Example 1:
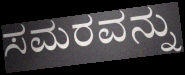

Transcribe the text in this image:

ಸಮರವನ್ನು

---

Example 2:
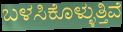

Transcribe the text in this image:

ಬಳಸಿಕೊಳ್ಳುತ್ತಿವೆ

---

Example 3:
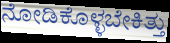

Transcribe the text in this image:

ನೋಡಿಕೊಳ್ಳಬೇಕಿತ್ತು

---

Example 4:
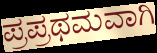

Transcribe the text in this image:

ಪ್ರಪ್ರಥಮವಾಗಿ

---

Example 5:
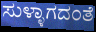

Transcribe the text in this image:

ಸುಳ್ಳಾಗದಂತೆ